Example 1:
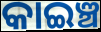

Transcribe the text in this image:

କାଇଞ୍ଚ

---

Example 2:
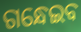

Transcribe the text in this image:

ଗନ୍ଧେଇବ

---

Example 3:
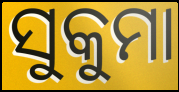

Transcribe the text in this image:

ସୁକୁମା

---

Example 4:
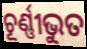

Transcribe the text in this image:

ଚୂର୍ଣ୍ଣୀଭୁତ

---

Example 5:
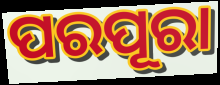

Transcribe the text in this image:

ପରପୂରା